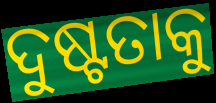
ଦୁଷ୍ଟତାକୁ